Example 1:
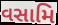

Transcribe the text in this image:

વસામિ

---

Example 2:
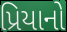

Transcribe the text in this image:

પ્રિયાનો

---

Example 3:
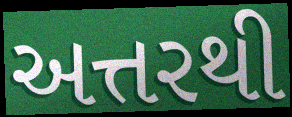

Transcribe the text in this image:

અત્તરથી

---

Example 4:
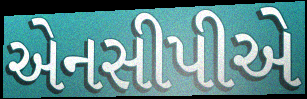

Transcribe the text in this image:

એનસીપીએ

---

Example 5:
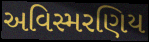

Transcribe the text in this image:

અવિસ્મરણિય